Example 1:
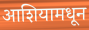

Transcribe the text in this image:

आशियामधून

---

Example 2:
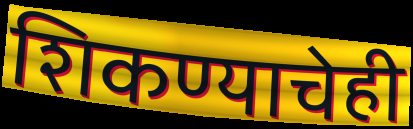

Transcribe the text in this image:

शिकण्याचेही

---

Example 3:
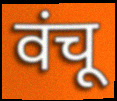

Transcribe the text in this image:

वंचू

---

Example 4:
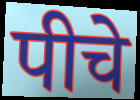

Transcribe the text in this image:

पीचे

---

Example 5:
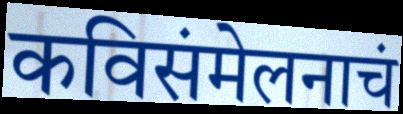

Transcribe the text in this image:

कविसंमेलनाचं